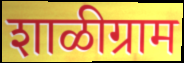
शाळीग्राम